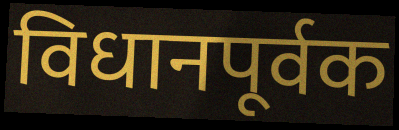
विधानपूर्वक